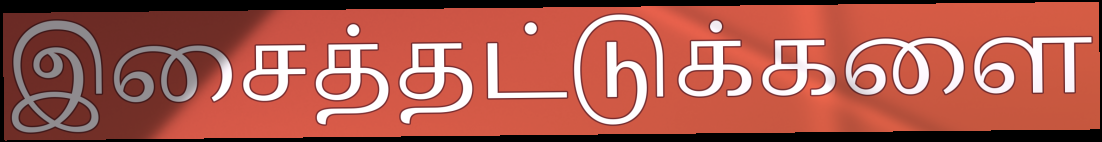
இசைத்தட்டுக்களை